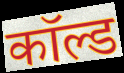
कॉल्ड